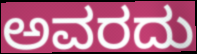
ಅವರದು